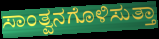
ಸಾಂತ್ವನಗೊಳಿಸುತ್ತಾ